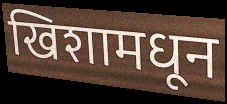
खिशामधून